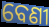
ବେଣୀ